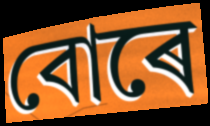
বোৰে